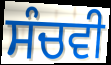
ਸੰਚਵੀ